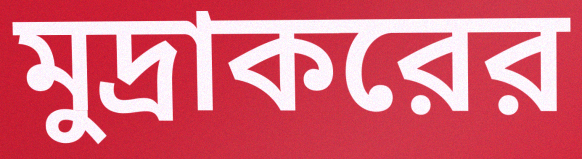
মুদ্রাকরের